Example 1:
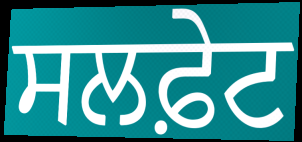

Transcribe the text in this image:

ਸਲਫ਼ੇਟ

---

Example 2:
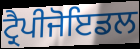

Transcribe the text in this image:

ਟ੍ਰੈਪੀਜੋਇਡਲ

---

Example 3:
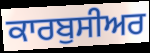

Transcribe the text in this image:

ਕਾਰਬੁਸੀਅਰ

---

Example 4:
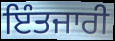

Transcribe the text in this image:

ਇੰਤਜਾਰੀ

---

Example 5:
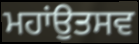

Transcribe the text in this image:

ਮਹਾਂਉਤਸਵ